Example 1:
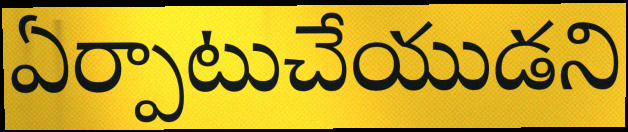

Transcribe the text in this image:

ఏర్పాటుచేయుడని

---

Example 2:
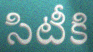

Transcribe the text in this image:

సిటీకి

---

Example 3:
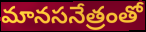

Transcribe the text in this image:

మానసనేత్రంతో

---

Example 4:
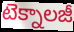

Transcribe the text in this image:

టెక్నాలజీ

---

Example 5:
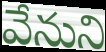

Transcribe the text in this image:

వేనుని